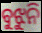
ବୁଝୁନି